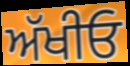
ਅੱਖੀਓ